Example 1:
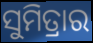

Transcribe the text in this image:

ସୁମିତ୍ରାର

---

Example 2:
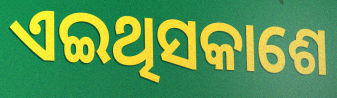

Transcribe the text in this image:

ଏଇଥିସକାଶେ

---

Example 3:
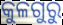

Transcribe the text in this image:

କୁଳଗୁରୁ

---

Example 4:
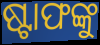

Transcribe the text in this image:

ଷ୍ଟାଫଙ୍କୁ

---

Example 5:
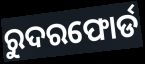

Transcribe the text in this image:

ରୁଦରଫୋର୍ଡ